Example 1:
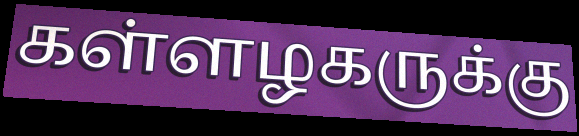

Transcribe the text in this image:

கள்ளழகருக்கு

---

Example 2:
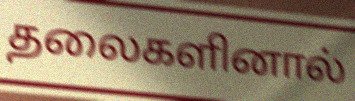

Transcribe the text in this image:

தலைகளினால்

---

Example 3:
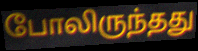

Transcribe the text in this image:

போலிருந்தது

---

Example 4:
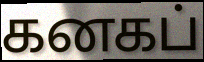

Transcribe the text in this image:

கனகப்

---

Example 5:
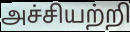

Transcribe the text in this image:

அச்சியற்றி